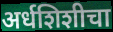
अर्धशिशीचा